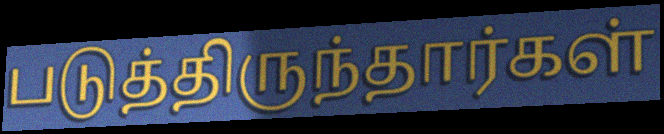
படுத்திருந்தார்கள்